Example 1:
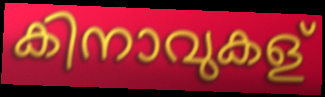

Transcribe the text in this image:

കിനാവുകള്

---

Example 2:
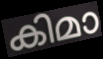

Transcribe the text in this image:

കിമാ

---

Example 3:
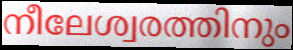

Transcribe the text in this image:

നീലേശ്വരത്തിനും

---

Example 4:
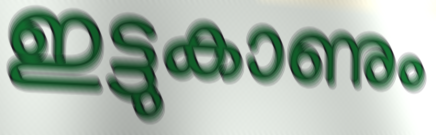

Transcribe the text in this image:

ഇട്ടുകാണും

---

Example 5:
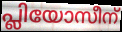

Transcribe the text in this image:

പ്ലിയോസീന്